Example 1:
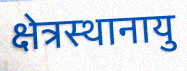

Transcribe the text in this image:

क्षेत्रस्थानायु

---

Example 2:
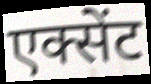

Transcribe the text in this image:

एक्सेंट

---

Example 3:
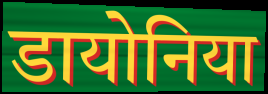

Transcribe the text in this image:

डायोनिया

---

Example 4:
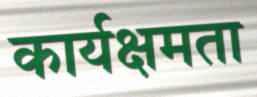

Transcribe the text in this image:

कार्यक्षमता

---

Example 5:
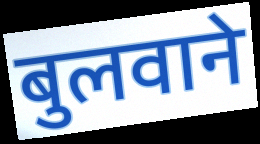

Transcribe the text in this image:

बुलवाने